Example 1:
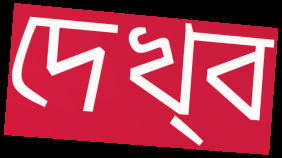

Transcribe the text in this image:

দেখ্‌ব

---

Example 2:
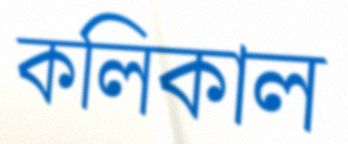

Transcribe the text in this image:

কলিকাল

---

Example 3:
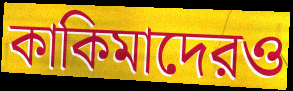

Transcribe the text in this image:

কাকিমাদেরও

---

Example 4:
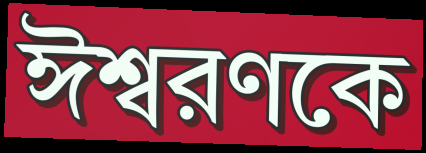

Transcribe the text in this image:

ঈশ্বরণকে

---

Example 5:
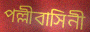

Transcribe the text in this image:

পল্লীবাসিনী